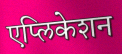
एप्लिकेशन